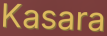
Kasara